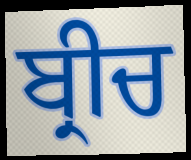
ਬ੍ਰੀਚ